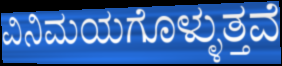
ವಿನಿಮಯಗೊಳ್ಳುತ್ತವೆ